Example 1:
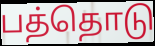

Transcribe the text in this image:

பத்தொடு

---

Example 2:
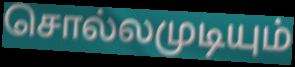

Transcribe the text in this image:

சொல்லமுடியும்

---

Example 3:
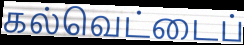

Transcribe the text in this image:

கல்வெட்டைப்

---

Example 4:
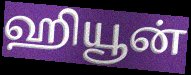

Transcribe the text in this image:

ஹியூன்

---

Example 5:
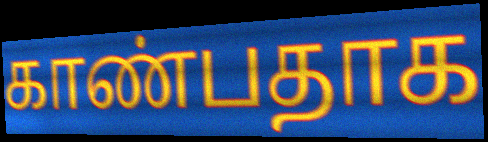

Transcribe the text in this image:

காண்பதாக